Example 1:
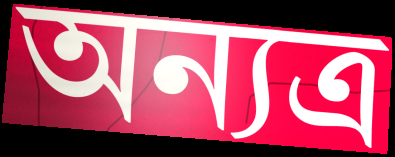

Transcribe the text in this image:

অন্যত্র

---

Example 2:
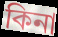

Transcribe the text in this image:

কিনা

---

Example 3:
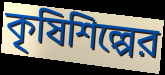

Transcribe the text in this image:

কৃষিশিল্পের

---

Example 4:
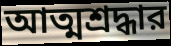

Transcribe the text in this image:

আত্মশ্রদ্ধার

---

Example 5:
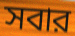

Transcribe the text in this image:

সবার